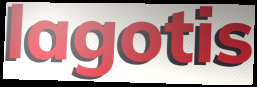
lagotis